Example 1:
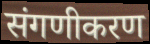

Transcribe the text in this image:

संगणीकरण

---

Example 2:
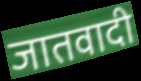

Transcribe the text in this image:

जातवादी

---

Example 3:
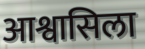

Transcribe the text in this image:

आश्वासिला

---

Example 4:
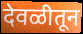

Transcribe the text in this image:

देवळीतून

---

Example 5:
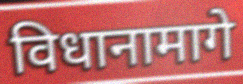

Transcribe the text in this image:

विधानामागे